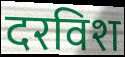
दरविश